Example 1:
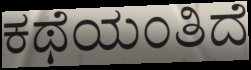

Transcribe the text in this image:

ಕಥೆಯಂತಿದೆ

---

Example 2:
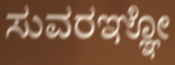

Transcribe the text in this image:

ಸುವರಞ್ಞೋ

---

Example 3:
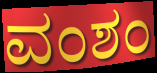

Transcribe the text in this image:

ವಂಶಂ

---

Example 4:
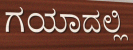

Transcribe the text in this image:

ಗಯಾದಲ್ಲಿ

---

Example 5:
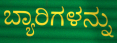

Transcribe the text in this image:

ಬ್ಯಾರಿಗಳನ್ನು